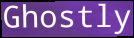
Ghostly